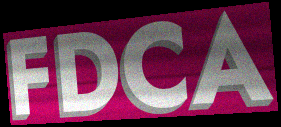
FDCA